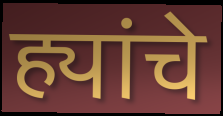
ह्यांचे